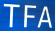
TFA